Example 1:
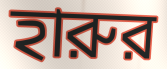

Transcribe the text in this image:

হারুর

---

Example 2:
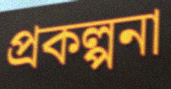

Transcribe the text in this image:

প্রকল্পনা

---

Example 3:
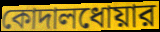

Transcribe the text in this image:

কোদালধোয়ার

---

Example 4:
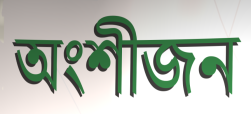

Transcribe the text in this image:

অংশীজন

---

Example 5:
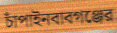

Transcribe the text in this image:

চাঁপাইনবাবগঞ্জের